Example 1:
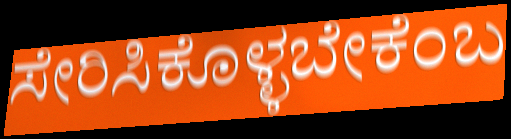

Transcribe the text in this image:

ಸೇರಿಸಿಕೊಳ್ಳಬೇಕೆಂಬ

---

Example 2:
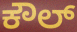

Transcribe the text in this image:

ಕೌಲ್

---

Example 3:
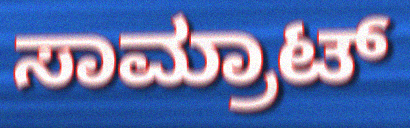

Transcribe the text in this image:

ಸಾಮ್ರಾಟ್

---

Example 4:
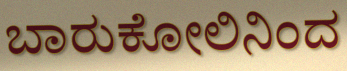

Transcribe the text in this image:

ಬಾರುಕೋಲಿನಿಂದ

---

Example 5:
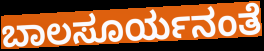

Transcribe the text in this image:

ಬಾಲಸೂರ್ಯನಂತೆ